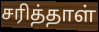
சரித்தாள்